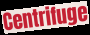
Centrifuge